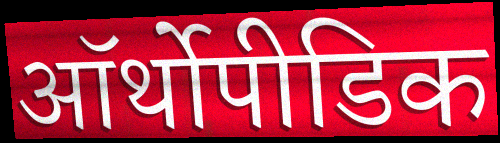
ऑर्थोपीडिक